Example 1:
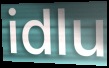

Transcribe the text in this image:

idlu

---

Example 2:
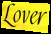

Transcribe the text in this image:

Lover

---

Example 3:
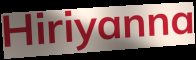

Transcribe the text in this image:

Hiriyanna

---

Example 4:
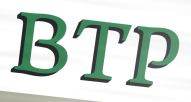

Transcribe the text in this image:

BTP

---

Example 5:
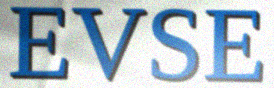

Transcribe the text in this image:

EVSE